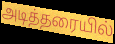
அடித்தரையில்